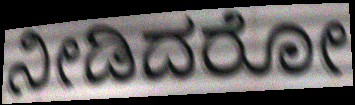
ನೀಡಿದರೋ